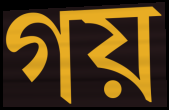
গয়